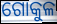
ଗୋକୁଳ